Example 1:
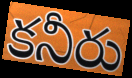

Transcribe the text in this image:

కనీరు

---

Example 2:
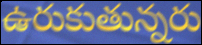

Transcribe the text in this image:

ఉరుకుతున్నరు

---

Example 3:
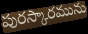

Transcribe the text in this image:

పురస్కారమును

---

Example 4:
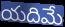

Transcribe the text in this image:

యదిమే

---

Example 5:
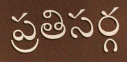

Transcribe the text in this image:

ప్రతిసర్గ